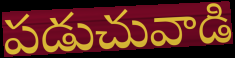
పడుచువాడి